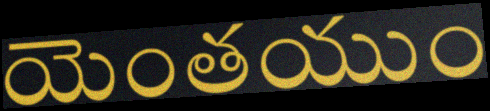
యెంతయుం